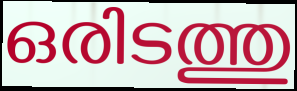
ഒരിടത്തു